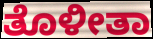
ತೊಳೀತಾ